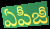
ఏపీజీ